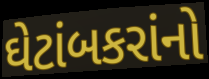
ઘેટાંબકરાંનો